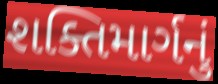
શક્તિમાર્ગનું